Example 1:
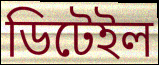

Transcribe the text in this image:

ডিটেইল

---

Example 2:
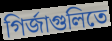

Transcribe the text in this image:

গির্জাগুলিতে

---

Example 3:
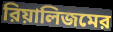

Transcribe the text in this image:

রিয়ালিজমের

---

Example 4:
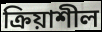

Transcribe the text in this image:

ক্রিয়াশীল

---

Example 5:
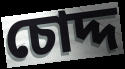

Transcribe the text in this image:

চোদ্দ